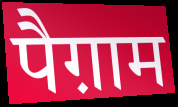
पैग़ाम